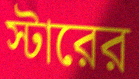
স্টারের